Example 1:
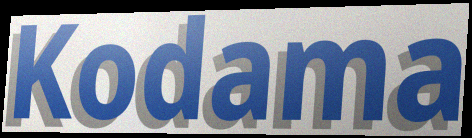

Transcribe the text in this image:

Kodama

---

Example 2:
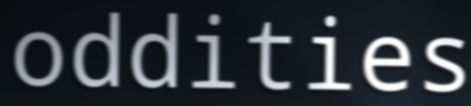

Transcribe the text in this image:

oddities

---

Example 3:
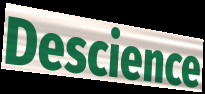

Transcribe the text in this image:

Descience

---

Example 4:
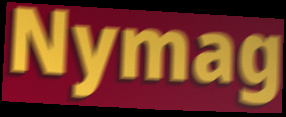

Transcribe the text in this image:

Nymag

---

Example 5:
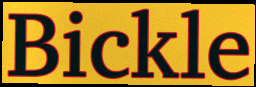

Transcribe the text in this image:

Bickle